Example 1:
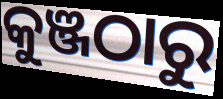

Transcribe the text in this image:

କୁଞ୍ଜଠାରୁ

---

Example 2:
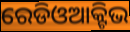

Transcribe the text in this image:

ରେଡିଓଆକ୍ଟିଭ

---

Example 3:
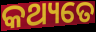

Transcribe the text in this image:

କଥ୍ୟତେ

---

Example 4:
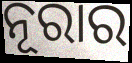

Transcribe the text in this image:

ନୂରାର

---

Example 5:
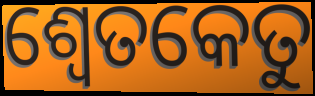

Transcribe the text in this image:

ଶ୍ୱେତକେତୁ